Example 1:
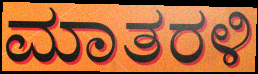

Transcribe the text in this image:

ಮಾತರಳಿ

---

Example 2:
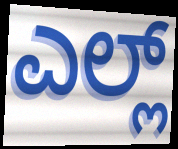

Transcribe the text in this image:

ಎಲ್ಲ್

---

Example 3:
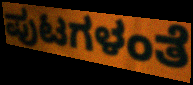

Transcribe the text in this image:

ಪುಟಗಳಂತೆ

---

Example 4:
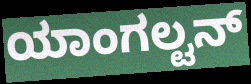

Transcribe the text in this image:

ಯಾಂಗಲ್ಟನ್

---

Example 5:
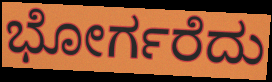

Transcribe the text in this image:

ಭೋರ್ಗರೆದು